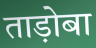
ताड़ोबा